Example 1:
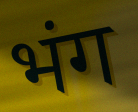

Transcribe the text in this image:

भंग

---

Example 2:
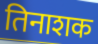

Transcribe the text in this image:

तिनाशक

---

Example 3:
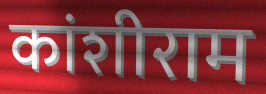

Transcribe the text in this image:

कांशीराम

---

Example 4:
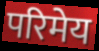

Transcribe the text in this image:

परिमेय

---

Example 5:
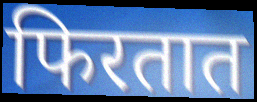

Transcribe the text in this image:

फिरतात